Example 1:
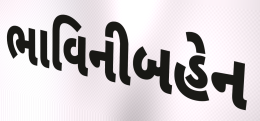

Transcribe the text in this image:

ભાવિનીબહેન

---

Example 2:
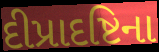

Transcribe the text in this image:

દીપ્રાદષ્ટિના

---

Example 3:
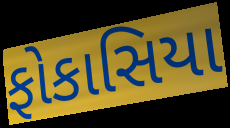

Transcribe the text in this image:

ફોકાસિયા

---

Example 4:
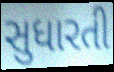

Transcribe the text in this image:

સુધારતી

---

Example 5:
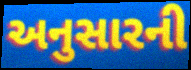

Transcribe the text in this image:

અનુસારની